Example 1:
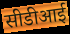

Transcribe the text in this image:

सीडीआई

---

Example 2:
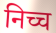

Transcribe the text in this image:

निच्च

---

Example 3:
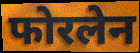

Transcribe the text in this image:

फोरलेन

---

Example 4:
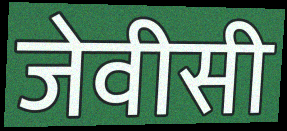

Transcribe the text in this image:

जेवीसी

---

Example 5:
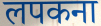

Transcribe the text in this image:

लपकना